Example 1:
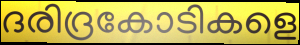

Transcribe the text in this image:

ദരിദ്രകോടികളെ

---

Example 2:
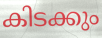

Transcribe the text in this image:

കിടക്കും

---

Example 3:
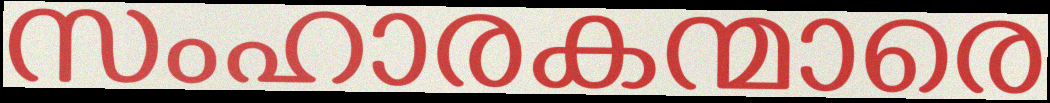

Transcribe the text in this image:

സംഹാരകന്മാരെ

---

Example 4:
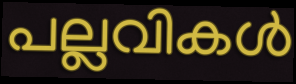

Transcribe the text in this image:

പല്ലവികൾ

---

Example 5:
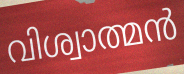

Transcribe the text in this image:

വിശ്വാത്മൻ